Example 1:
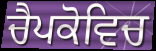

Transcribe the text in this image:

ਚੈਪਕੋਵਿਚ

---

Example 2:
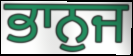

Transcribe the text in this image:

ਭਾਨੁਜ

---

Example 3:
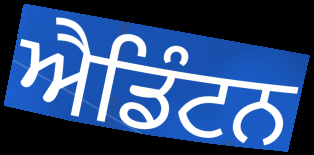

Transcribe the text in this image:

ਐਡਿੰਟਨ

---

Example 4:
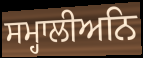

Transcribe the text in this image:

ਸਮ੍ਹਾਲੀਅਨਿ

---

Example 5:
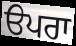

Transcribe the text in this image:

ੳਪਰਾ